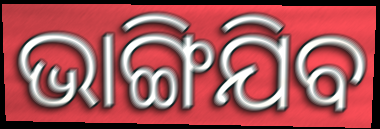
ଭାଙ୍ଗିଯିବ